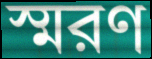
স্মরণ